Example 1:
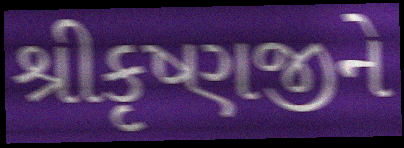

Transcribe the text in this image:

શ્રીકૃષ્ણજીને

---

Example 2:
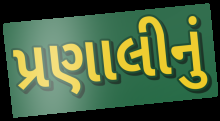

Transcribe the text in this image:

પ્રણાલીનું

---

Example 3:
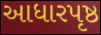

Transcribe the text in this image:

આધારપૃષ્ઠ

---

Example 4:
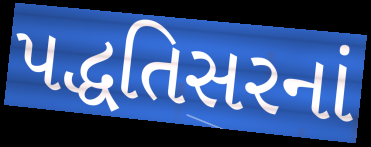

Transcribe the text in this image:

પદ્ધતિસરનાં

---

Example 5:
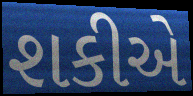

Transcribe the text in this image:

શકીએ